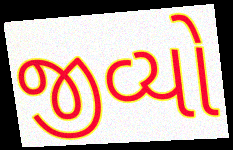
જીવ્યો